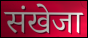
संखेजा